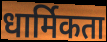
धार्मिकता